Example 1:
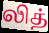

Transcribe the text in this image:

லித்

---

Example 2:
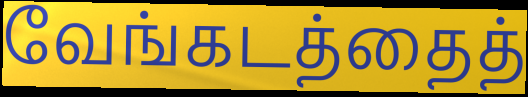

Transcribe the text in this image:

வேங்கடத்தைத்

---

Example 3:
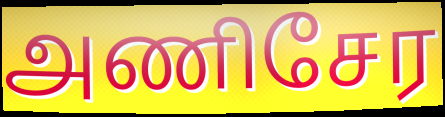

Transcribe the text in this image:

அணிசேர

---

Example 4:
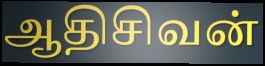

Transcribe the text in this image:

ஆதிசிவன்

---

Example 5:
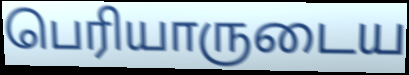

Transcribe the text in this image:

பெரியாருடைய